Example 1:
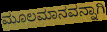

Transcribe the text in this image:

ಮೂಲಮಾನವನ್ನಾಗಿ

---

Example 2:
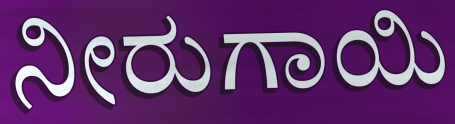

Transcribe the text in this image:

ನೀರುಗಾಯಿ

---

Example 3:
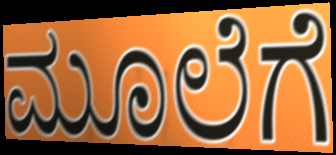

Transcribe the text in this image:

ಮೂಲೆಗೆ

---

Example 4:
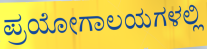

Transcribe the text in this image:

ಪ್ರಯೋಗಾಲಯಗಳಲ್ಲಿ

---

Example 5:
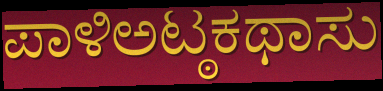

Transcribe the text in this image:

ಪಾಳಿಅಟ್ಠಕಥಾಸು